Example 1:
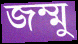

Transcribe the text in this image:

জম্মু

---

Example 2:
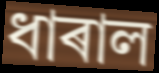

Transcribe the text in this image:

ধাৰাল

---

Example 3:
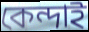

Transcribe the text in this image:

কেন্দাই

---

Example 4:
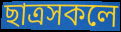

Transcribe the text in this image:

ছাত্ৰসকলে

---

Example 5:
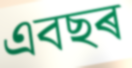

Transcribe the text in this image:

এবছৰ